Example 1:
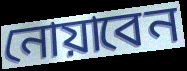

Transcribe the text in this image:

নোয়াবেন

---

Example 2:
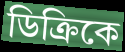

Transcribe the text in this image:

ডিক্রিকে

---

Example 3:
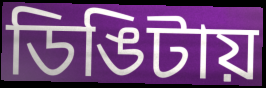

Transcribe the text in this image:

ডিঙিটায়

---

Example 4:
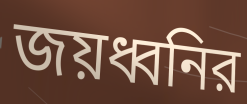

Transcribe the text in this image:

জয়ধ্বনির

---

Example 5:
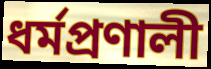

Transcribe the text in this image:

ধর্মপ্রণালী